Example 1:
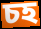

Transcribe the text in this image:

চহ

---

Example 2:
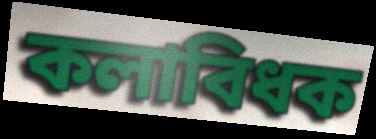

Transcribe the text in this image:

কলাবিধক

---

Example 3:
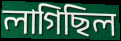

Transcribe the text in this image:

লাগিছিল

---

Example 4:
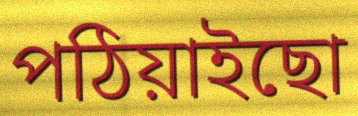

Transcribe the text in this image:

পঠিয়াইছো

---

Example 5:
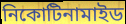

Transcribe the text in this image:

নিকোটিনামাইড